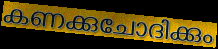
കണക്കുചോദിക്കും